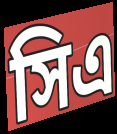
সিএ